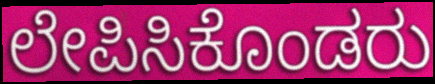
ಲೇಪಿಸಿಕೊಂಡರು